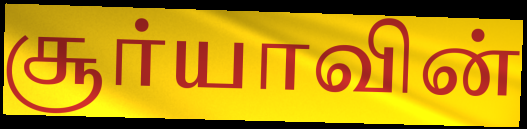
சூர்யாவின்